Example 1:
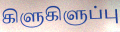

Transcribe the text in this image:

கிளுகிளுப்பு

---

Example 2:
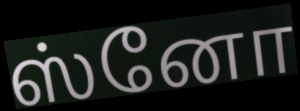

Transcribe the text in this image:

ஸ்னோ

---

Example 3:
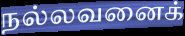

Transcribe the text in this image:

நல்லவனைக்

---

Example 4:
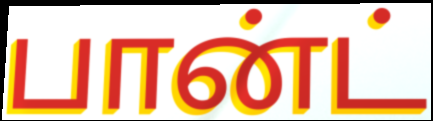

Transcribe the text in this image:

பான்ட்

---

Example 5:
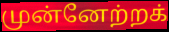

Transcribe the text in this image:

முன்னேற்றக்